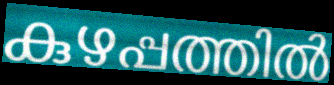
കുഴപ്പത്തിൽ